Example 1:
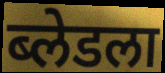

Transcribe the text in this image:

ब्लेडला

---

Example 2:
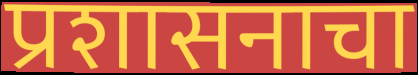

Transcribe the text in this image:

प्रशासनाचा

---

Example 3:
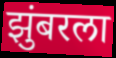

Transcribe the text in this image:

झुंबरला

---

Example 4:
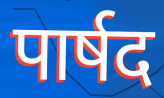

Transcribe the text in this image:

पार्षद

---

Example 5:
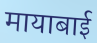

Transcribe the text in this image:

मायाबाई